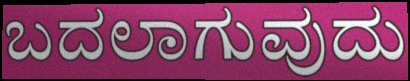
ಬದಲಾಗುವುದು